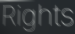
Rights